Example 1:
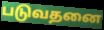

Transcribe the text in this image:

படுவதனை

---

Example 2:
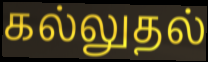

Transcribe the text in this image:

கல்லுதல்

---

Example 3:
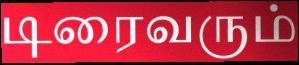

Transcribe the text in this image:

டிரைவரும்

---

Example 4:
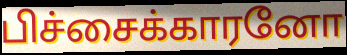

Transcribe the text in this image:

பிச்சைக்காரனோ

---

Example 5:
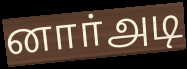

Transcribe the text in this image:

னார்அடி